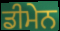
ਡੀਮੇਨ